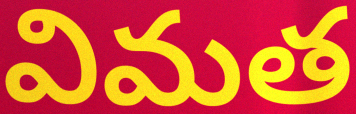
విమత